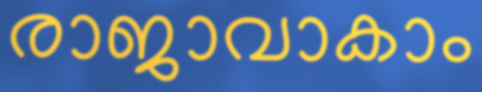
രാജാവാകാം